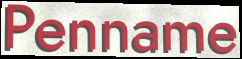
Penname